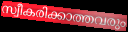
സ്വീകരിക്കാത്തവരും